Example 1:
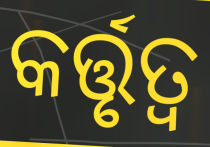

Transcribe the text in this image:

କର୍ତ୍ତୃତ୍ଵ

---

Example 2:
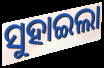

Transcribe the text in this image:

ସୁହାଇଲା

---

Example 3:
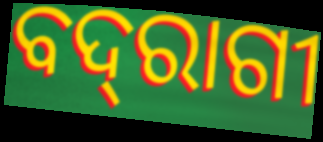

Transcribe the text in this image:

ବଦ୍‌ରାଗୀ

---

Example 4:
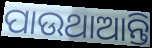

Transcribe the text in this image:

ପାଉଥାଆନ୍ତି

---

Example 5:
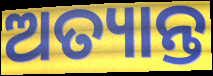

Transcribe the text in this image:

ଅତ୍ୟାନ୍ତ